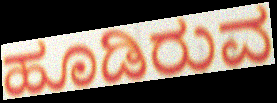
ಹೂಡಿರುವ